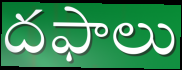
దఫాలు